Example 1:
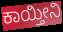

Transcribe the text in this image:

ಕಾಯ್ತೀನಿ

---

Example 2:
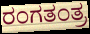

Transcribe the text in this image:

ರಂಗತಂತ್ರ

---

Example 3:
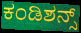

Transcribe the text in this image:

ಕಂಡಿಶನ್ಸ್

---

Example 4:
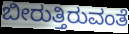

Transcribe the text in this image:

ಬೀರುತ್ತಿರುವಂತೆ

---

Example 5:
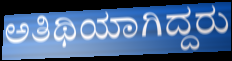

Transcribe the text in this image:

ಅತಿಥಿಯಾಗಿದ್ದರು